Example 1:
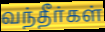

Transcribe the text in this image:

வந்தீர்கள்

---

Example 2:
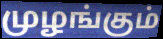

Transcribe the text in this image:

முழங்கும்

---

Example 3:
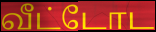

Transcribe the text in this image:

வீட்டோட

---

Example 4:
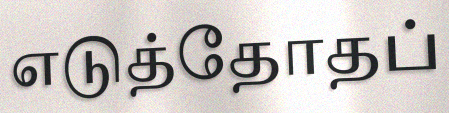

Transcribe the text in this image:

எடுத்தோதப்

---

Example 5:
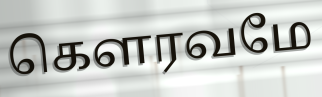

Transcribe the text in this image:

கௌரவமே